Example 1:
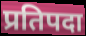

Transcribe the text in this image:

प्रतिपदा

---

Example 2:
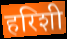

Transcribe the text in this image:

हरिशी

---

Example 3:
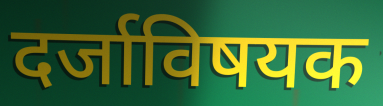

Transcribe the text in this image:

दर्जाविषयक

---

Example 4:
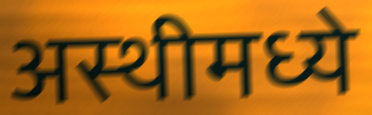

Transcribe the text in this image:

अस्थीमध्ये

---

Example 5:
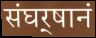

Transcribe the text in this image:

संघर्षानं